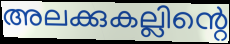
അലക്കുകല്ലിന്റെ